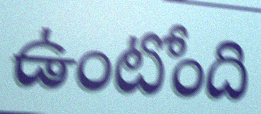
ఉంటోంది